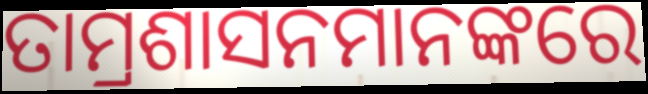
ତାମ୍ରଶାସନମାନଙ୍କରେ